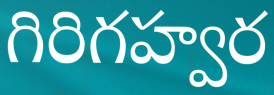
గిరిగహ్వర